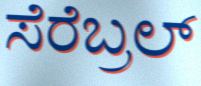
ಸೆರೆಬ್ರಲ್